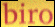
biro